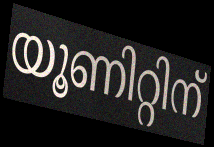
യൂണിറ്റിന്